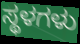
ಸ್ಥಳಗಳು